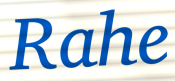
Rahe